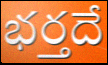
భర్తదే